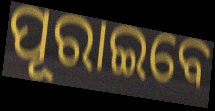
ପୂରାଇବେ